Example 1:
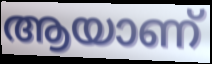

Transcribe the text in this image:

ആയാണ്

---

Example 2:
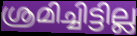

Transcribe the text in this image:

ശ്രമിച്ചിട്ടില്ല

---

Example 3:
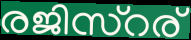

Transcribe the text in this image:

രജിസ്റര്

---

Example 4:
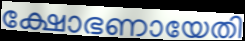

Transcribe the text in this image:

ക്ഷോഭണായേതി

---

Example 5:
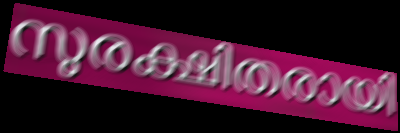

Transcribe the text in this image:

സുരക്ഷിതരായി